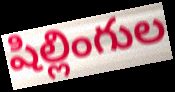
షిల్లింగుల